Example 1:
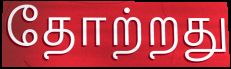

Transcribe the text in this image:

தோற்றது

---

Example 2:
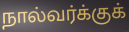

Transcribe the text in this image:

நால்வர்க்குக்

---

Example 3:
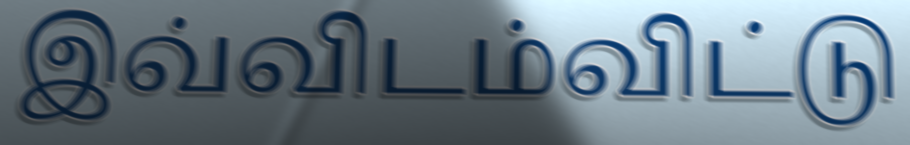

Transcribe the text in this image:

இவ்விடம்விட்டு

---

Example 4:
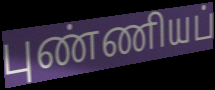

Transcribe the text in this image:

புண்ணியப்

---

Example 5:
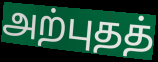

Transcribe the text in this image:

அற்புதத்